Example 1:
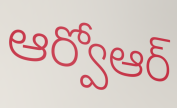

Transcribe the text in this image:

ఆర్వోఆర్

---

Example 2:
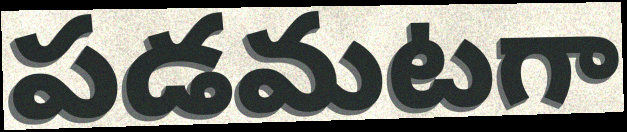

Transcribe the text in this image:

పడమటగా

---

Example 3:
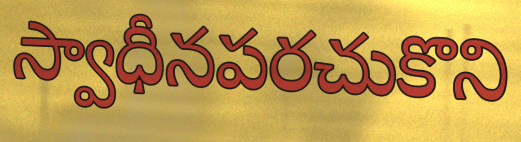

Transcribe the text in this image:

స్వాధీనపరచుకొని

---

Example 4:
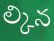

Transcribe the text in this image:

ల్కిన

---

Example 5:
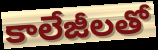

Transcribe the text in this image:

కాలేజీలతో